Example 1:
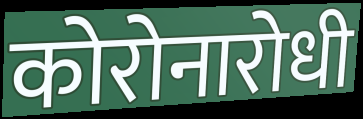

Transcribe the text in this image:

कोरोनारोधी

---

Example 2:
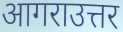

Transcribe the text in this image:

आगराउत्तर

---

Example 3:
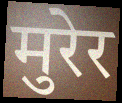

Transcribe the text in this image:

मुरेर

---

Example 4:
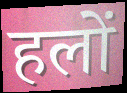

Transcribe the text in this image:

हलों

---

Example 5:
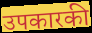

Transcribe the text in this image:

उपकारकी